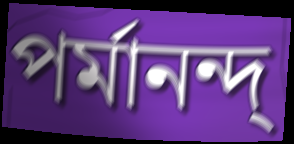
পর্মানন্দ্